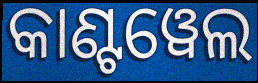
କାଣ୍ଟୱେଲ